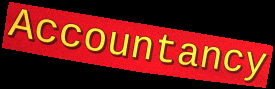
Accountancy